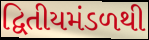
દ્વિતીયમંડળથી